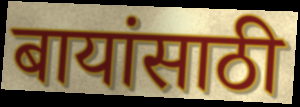
बायांसाठी